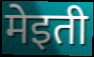
मेइती